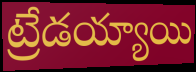
ట్రేడయ్యాయి